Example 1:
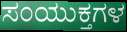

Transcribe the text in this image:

ಸಂಯುಕ್ತಗಳ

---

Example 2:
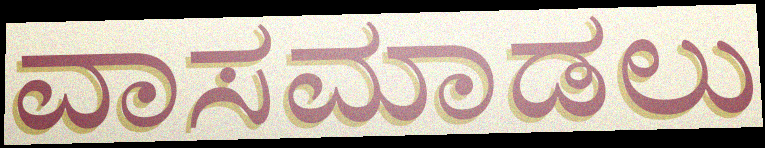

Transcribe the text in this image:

ವಾಸಮಾಡಲು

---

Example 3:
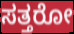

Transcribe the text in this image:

ಸತ್ತರೋ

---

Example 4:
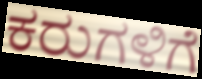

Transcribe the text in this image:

ಕರುಗಳಿಗೆ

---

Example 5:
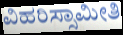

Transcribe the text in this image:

ವಿಹರಿಸ್ಸಾಮೀತಿ